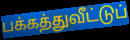
பக்கத்துவீட்டுப்